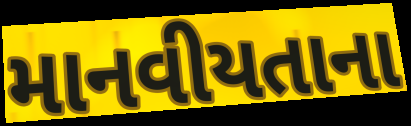
માનવીયતાના